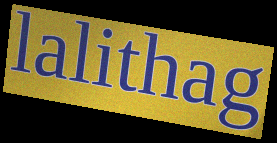
lalithag